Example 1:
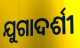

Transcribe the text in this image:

ଯୁଗାଦର୍ଶୀ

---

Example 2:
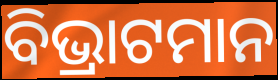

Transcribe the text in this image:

ବିଭ୍ରାଟମାନ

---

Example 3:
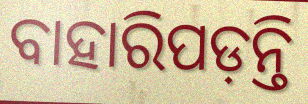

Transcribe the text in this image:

ବାହାରିପଡ଼ନ୍ତି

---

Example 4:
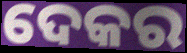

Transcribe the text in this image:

ଦେକର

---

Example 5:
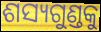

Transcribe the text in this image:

ଶସ୍ୟଗୁଣ୍ଡକୁ